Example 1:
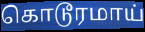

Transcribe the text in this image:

கொடூரமாய்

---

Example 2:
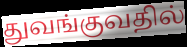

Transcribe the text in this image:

துவங்குவதில்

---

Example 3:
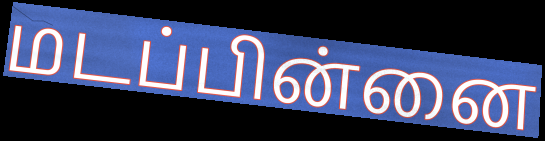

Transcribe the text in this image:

மடப்பின்னை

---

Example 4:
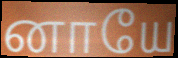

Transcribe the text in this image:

னாயே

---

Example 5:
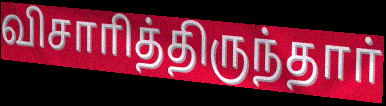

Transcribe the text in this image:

விசாரித்திருந்தார்